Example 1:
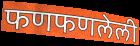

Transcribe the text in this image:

फणफणलेली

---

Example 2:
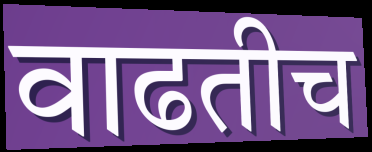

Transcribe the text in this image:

वाढतीच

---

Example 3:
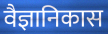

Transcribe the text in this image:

वैज्ञानिकास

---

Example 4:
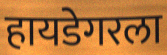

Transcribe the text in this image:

हायडेगरला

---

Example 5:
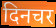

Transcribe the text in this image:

दिनचर